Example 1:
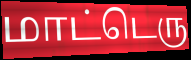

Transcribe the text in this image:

மாட்டெரு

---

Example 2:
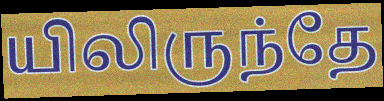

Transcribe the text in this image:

யிலிருந்தே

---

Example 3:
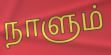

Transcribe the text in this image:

நாளும்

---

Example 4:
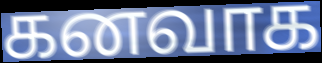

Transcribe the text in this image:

கனவாக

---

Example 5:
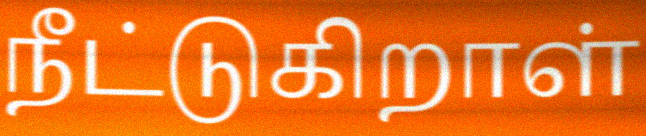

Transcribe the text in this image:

நீட்டுகிறாள்